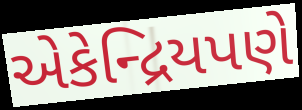
એકેન્દ્રિયપણે